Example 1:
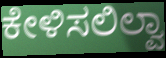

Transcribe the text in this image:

ಕೇಳಿಸಲಿಲ್ವಾ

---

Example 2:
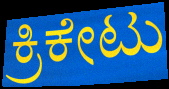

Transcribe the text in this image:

ಕ್ರಿಕೇಟು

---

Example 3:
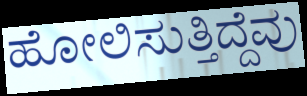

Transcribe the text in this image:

ಹೋಲಿಸುತ್ತಿದ್ದೆವು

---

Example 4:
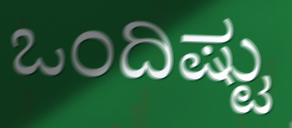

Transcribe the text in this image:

ಒಂದಿಷ್ಟು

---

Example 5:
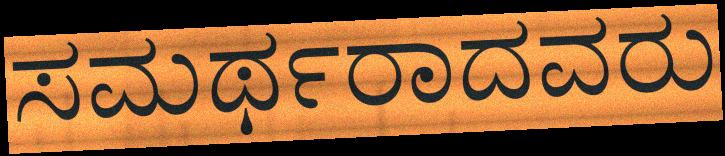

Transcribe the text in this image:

ಸಮರ್ಥರಾದವರು